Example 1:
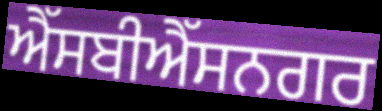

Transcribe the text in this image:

ਐੱਸਬੀਐੱਸਨਗਰ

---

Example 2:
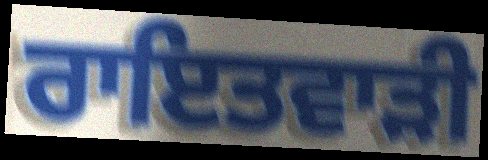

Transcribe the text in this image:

ਰਾਇਤਵਾੜੀ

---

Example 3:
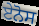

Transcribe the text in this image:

ਏਨੋਸ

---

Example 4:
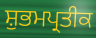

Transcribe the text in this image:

ਸ਼ੁਭਮਪ੍ਰਤੀਕ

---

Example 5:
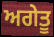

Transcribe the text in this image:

ਅਗੇਤੂ